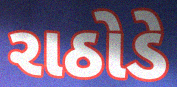
રાઠોડે